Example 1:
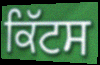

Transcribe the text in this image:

ਕਿੱਟਸ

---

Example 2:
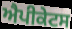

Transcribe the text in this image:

ਐਪੀਕੇਟਸ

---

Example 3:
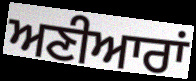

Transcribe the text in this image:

ਅਣੀਆਰਾਂ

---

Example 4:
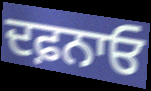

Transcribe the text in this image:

ਦਫ਼ਨਾਓ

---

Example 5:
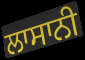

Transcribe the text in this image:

ਲਾਸਾਨੀ